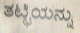
ತಟ್ಟೆಯನ್ನು